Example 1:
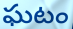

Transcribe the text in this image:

ఘటం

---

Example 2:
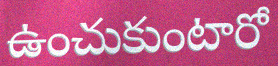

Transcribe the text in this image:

ఉంచుకుంటారో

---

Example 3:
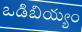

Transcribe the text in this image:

ఒడిబియ్యం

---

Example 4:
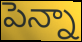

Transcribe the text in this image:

పెన్నా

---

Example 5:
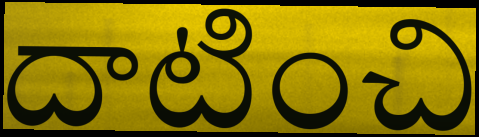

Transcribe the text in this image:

దాటించి